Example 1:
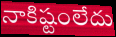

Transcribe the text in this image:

నాకిష్టంలేదు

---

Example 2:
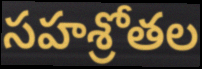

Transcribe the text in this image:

సహశ్రోతల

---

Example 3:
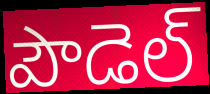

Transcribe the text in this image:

పౌడెల్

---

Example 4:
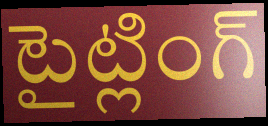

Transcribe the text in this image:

టైట్లింగ్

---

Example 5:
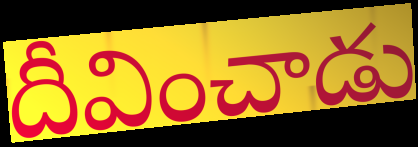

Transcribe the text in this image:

దీవించాడు